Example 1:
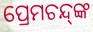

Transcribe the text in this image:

ପ୍ରେମଚନ୍ଦ୍‌ଙ୍କ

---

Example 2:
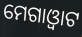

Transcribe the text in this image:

ମେଗାଓ୍ୱାଟ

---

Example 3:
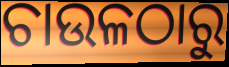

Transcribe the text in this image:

ଚାଉଳଠାରୁ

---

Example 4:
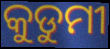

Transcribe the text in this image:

କୁଡୁମୀ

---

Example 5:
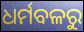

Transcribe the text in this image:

ଧର୍ମବଳରୁ